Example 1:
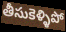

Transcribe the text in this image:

తీసుకెళ్ళిపో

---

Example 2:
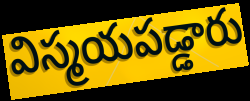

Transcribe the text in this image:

విస్మయపడ్డారు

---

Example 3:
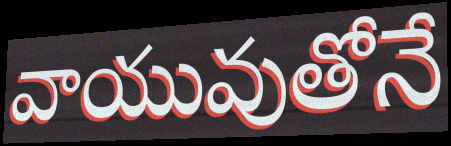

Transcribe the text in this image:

వాయువుతోనే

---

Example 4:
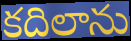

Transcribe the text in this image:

కదిలాను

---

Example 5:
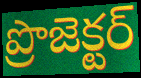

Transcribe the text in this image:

ప్రొజెక్టర్